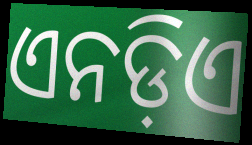
ଏନଡ଼ିଏ